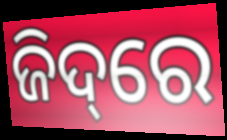
ଜିଦ୍‌ରେ